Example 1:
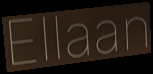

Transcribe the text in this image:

Ellaan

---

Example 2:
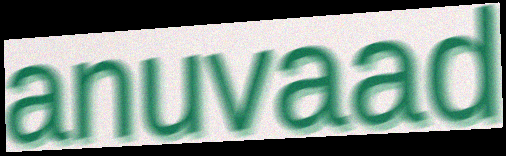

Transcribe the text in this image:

anuvaad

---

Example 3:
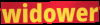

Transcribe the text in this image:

widower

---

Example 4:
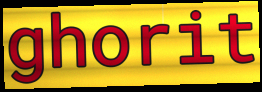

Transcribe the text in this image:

ghorit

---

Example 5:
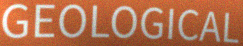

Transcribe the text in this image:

GEOLOGICAL